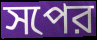
সপের